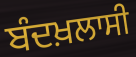
ਬੰਦਖ਼ਲਾਸੀ